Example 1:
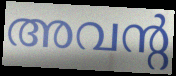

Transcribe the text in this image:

അവന്റ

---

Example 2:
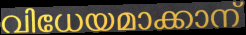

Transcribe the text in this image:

വിധേയമാക്കാന്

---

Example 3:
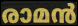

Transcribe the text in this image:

രാമൻ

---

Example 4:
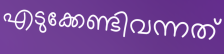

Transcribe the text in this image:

എടുക്കേണ്ടിവന്നത്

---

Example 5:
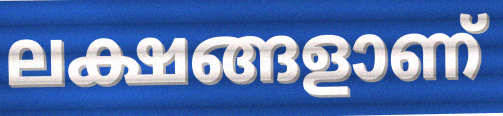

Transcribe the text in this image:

ലക്ഷങ്ങളാണ്